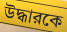
উদ্ধারকে